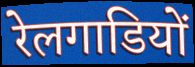
रेलगाडियों